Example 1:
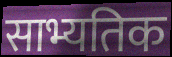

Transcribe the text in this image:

साभ्यतिक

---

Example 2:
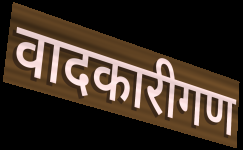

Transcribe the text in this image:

वादकारीगण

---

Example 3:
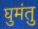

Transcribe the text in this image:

घुमंतु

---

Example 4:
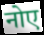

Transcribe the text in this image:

नोए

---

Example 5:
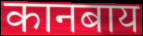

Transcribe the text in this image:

कानबाय